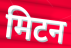
मिटन